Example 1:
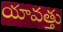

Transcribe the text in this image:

యావత్తు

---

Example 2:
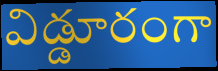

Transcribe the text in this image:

విడ్డూరంగా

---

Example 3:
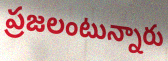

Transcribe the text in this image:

ప్రజలంటున్నారు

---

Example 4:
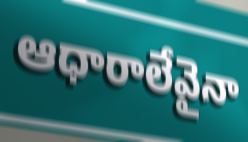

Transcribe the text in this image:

ఆధారాలేవైనా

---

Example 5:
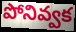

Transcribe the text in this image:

పోనివ్వక